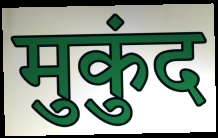
मुकुंद